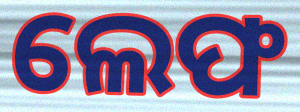
ଲେଫ